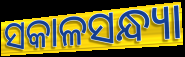
ସକାଳସନ୍ଧ୍ୟା